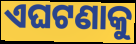
ଏଘଟଣାକୁ